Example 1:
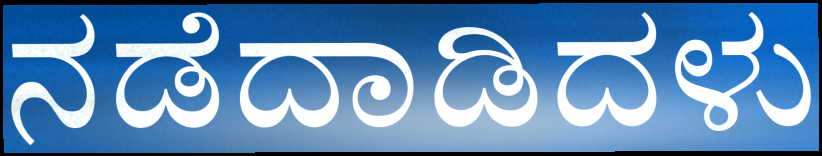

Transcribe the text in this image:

ನಡೆದಾಡಿದಳು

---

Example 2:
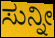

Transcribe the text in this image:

ಸುನ್ನೀ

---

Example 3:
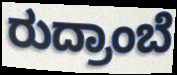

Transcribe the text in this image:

ರುದ್ರಾಂಬೆ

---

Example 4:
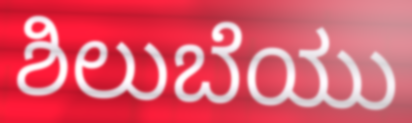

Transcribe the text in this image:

ಶಿಲುಬೆಯು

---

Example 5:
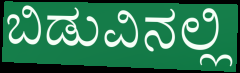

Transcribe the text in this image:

ಬಿಡುವಿನಲ್ಲಿ